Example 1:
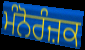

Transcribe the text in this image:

ਮੰਨੋਰੰਜ਼ਕ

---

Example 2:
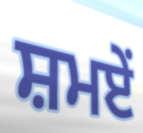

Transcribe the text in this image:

ਸ਼ਮਏਂ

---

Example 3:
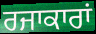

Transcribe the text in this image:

ਰਜਾਕਾਰਾਂ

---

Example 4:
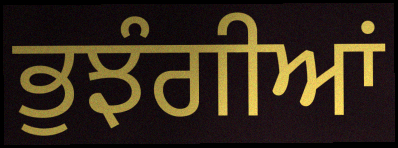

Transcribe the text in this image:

ਭੁਝੰਗੀਆਂ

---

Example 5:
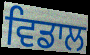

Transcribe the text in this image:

ਵਿਡਾਲ